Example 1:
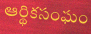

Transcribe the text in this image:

ఆర్థికసంఘం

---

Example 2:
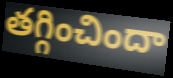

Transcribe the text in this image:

తగ్గించిందా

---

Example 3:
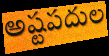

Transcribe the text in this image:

అష్టపదుల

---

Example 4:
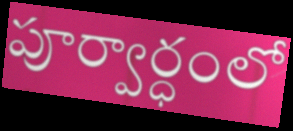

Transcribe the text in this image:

పూర్వార్ధంలో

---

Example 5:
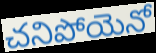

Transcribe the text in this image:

చనిపోయెనో